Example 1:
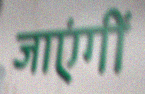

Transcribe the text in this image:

जाएंगीं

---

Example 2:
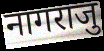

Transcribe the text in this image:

नागराजु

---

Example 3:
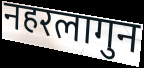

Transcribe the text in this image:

नहरलागुन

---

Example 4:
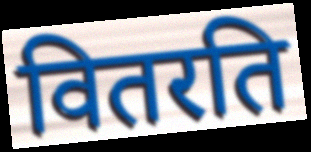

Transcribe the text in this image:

वितरति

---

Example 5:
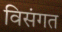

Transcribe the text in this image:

विसंगत